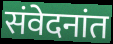
संवेदनांत